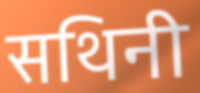
सथिनी